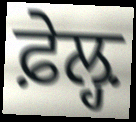
ਫ਼ੇਲ਼੍ਹ